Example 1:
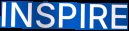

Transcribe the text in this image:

INSPIRE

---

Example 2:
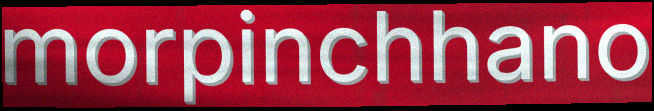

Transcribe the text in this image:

morpinchhano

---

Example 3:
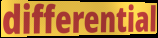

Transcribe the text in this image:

differential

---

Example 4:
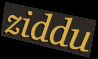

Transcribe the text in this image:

ziddu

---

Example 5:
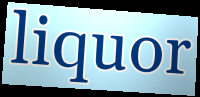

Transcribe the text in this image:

liquor